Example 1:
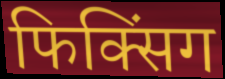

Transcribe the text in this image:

फिक्सिंग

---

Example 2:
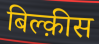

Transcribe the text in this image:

बिल्क़ीस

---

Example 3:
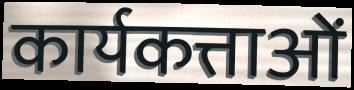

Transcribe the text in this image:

कार्यकत्ताओं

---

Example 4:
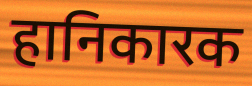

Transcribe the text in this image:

हानिकारक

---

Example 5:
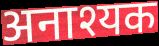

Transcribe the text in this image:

अनाश्यक